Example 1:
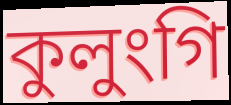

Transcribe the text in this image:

কুলুংগি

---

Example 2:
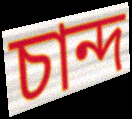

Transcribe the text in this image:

চান্দ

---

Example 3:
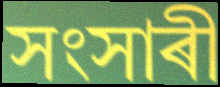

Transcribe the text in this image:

সংসাৰী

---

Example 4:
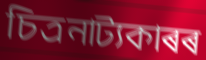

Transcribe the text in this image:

চিত্ৰনাট্যকাৰৰ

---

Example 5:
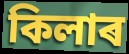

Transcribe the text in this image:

কিলাৰ